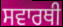
ਸਵਾਰਥੀ